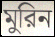
মুরিন